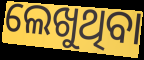
ଲେଖୁଥିବା